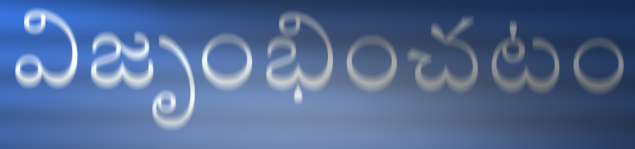
విజృంభించటం